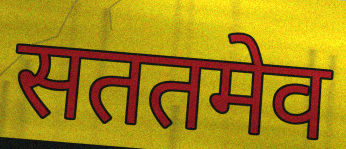
सततमेव